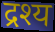
द्रश्य